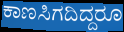
ಕಾಣಸಿಗದಿದ್ದರೂ